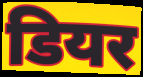
डियर